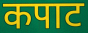
कपाट